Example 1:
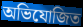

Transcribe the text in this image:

অভিযোজিত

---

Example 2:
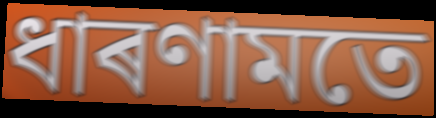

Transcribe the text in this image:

ধাৰণামতে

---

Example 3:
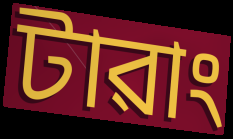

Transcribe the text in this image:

টাৱাং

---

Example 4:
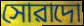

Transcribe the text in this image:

সোৱাদো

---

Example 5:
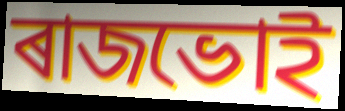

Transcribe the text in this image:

ৰাজভোই